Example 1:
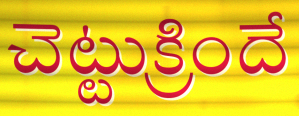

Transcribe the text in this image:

చెట్టుక్రిందే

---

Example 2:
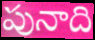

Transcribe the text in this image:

పునాది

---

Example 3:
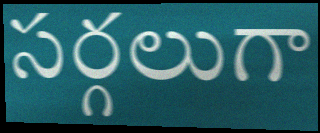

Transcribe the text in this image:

సర్గలుగా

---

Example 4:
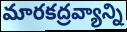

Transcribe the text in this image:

మారకద్రవ్యాన్ని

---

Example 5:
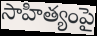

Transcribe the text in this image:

సాహిత్యంపై